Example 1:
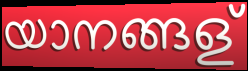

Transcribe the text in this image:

യാനങ്ങള്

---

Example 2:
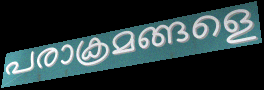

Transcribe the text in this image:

പരാക്രമങ്ങളെ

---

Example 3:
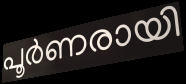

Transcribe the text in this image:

പൂർണരായി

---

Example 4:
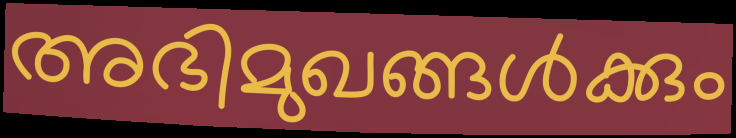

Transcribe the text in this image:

അഭിമുഖങ്ങൾക്കും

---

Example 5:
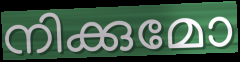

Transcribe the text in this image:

നിക്കുമോ